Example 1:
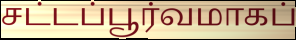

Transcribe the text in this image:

சட்டப்பூர்வமாகப்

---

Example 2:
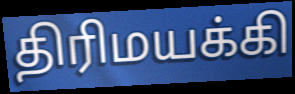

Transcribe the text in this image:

திரிமயக்கி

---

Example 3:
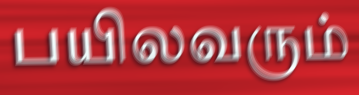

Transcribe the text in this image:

பயிலவரும்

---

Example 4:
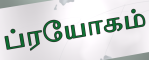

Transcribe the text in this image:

ப்ரயோகம்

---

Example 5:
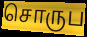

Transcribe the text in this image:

சொருப